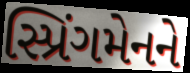
સ્પ્રિંગમેનને